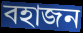
বহাজন